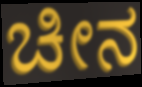
ಚೀನ